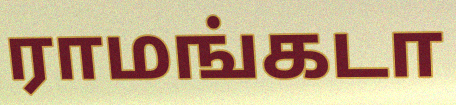
ராமங்கடா